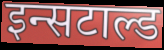
इन्सटाल्ड